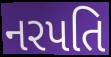
નરપતિ